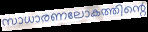
സാധാരണലോകത്തിന്റെ